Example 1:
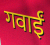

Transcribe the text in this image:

गवाईं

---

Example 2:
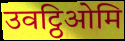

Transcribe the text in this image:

उवट्ठिओमि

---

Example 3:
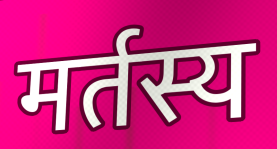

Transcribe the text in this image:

मर्तस्य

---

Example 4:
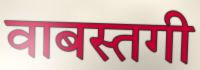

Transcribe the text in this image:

वाबस्तगी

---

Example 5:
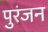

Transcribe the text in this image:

पुरंजन